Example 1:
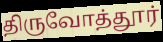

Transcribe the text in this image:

திருவோத்தூர்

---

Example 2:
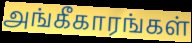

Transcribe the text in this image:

அங்கீகாரங்கள்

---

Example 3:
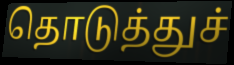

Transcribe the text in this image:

தொடுத்துச்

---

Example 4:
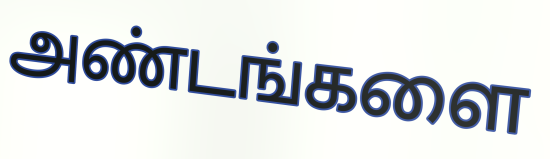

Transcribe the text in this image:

அண்டங்களை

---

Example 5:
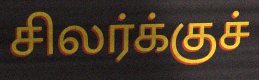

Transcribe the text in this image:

சிலர்க்குச்